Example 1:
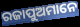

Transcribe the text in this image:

ରଜାପୁଅମାନେ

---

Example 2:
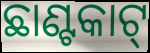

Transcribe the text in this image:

ଛାଣ୍ଟକାଟ୍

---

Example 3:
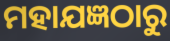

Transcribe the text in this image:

ମହାଯଜ୍ଞଠାରୁ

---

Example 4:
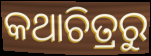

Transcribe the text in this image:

କଥାଚିତ୍ରରୁ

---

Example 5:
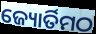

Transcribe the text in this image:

ଜ୍ୟୋର୍ତିମଠ